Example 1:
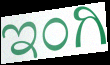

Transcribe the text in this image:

ಇಂಗಿ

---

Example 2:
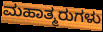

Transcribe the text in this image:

ಮಹಾತ್ಮರುಗಳು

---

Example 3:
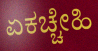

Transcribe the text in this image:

ಏಕಚ್ಚೇಹಿ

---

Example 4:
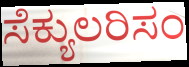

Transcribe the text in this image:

ಸೆಕ್ಯುಲರಿಸಂ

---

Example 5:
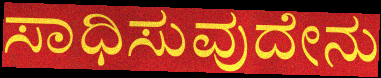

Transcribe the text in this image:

ಸಾಧಿಸುವುದೇನು